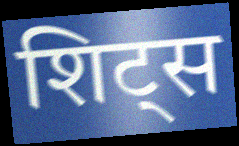
शिट्स